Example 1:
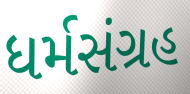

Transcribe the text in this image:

ધર્મસંગ્રહ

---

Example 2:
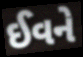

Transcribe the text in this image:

ઈવને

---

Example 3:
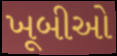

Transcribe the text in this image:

ખૂબીઓ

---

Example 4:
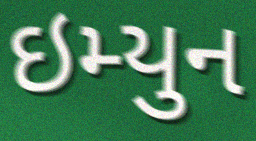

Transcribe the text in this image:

ઇમ્યુન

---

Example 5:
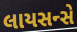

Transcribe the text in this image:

લાયસન્સે